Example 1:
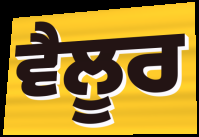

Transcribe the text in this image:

ਵੈਲੂਰ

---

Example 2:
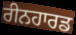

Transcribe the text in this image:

ਰੀਨਹਾਰਡ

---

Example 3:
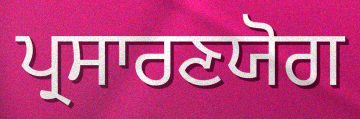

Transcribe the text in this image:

ਪ੍ਰਸਾਰਣਯੋਗ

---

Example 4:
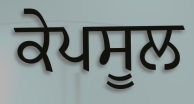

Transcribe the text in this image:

ਕੇਪਸੂਲ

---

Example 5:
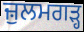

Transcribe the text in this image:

ਜ਼ੁਲਮਗੜ੍ਹ